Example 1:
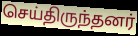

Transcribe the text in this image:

செய்திருந்தனர்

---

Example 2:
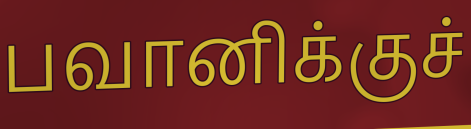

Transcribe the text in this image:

பவானிக்குச்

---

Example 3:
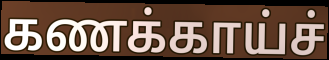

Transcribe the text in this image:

கணக்காய்ச்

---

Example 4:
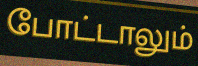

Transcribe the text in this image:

போட்டாலும்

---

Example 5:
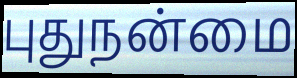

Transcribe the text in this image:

புதுநன்மை